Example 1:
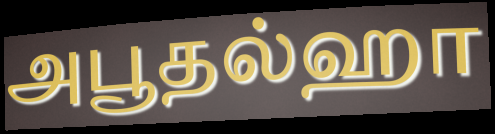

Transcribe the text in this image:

அபூதல்ஹா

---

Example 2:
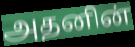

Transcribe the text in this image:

அதனின்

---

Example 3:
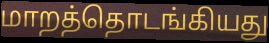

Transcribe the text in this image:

மாறத்தொடங்கியது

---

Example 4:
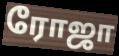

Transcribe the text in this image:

ரோஜா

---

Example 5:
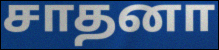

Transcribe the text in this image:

சாதனா